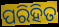
ପରିହିତ